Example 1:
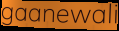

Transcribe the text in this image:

gaanewali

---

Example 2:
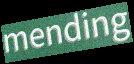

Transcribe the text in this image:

mending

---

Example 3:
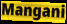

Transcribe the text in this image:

Mangani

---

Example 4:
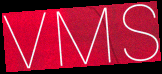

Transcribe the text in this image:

VMS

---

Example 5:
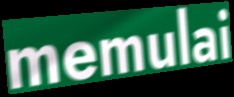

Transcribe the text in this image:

memulai